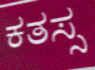
ಕತಸ್ಸ